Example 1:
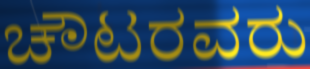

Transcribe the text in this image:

ಚೌಟರವರು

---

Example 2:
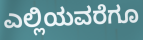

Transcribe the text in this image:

ಎಲ್ಲಿಯವರೆಗೂ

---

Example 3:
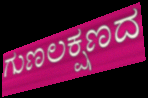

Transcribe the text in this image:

ಗುಣಲಕ್ಷಣದ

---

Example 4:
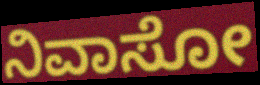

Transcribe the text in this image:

ನಿವಾಸೋ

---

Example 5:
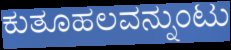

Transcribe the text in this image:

ಕುತೂಹಲವನ್ನುಂಟು